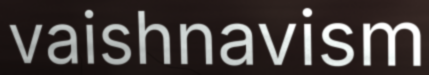
vaishnavism